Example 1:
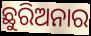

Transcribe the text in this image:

ଛୁରିଅନାର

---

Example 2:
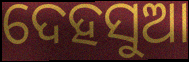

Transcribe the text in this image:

ଦେହସୁଆ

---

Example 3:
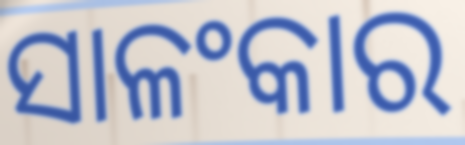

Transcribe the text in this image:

ସାଳଂକାର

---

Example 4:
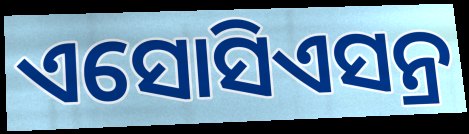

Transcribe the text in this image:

ଏସୋସିଏସନ୍ର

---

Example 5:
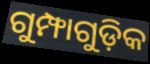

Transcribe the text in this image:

ଗୁମ୍ଫାଗୁଡ଼ିକ